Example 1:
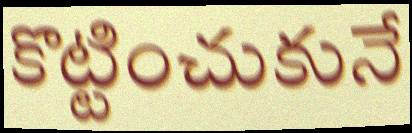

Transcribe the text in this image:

కొట్టించుకునే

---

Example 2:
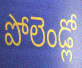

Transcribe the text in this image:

పోలెండ్లో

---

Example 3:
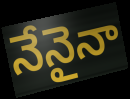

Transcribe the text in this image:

నేనైనా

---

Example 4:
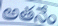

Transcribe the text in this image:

అతనేం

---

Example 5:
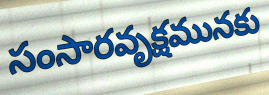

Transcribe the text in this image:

సంసారవృక్షమునకు